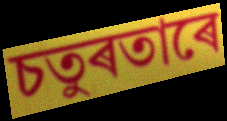
চতুৰতাৰে